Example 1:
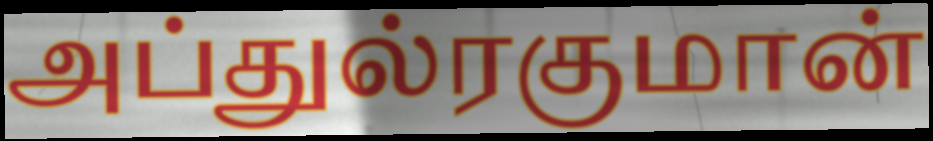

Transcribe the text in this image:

அப்துல்ரகுமான்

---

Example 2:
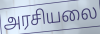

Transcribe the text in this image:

அரசியலை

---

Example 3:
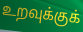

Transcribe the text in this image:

உறவுக்குக்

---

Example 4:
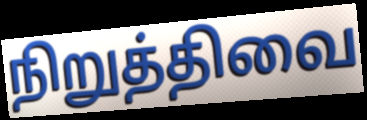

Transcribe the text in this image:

நிறுத்திவை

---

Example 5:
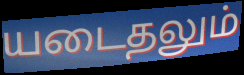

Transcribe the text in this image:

யடைதலும்